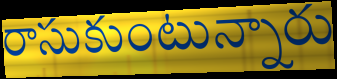
రాసుకుంటున్నారు